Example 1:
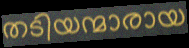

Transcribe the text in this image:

തടിയന്മാരായ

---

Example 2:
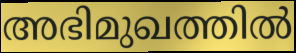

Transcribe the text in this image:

അഭിമുഖത്തിൽ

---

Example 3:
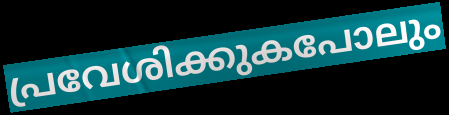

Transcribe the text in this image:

പ്രവേശിക്കുകപോലും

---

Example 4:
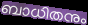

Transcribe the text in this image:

ബാധിതനും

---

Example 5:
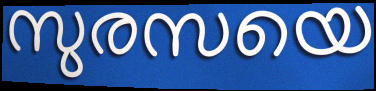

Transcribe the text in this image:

സുരസയെ